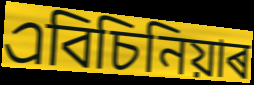
এবিচিনিয়াৰ